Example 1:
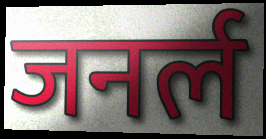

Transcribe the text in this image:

जनर्ल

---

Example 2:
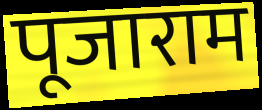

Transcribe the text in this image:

पूजाराम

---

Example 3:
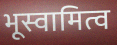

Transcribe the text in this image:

भूस्वामित्व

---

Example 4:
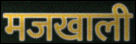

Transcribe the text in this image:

मजखाली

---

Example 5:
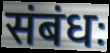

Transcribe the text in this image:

संबंधः